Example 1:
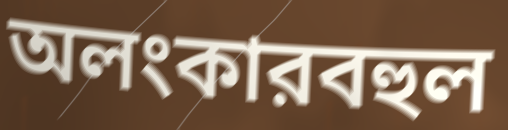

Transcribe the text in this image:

অলংকারবহুল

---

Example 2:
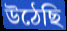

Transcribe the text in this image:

উঠেছি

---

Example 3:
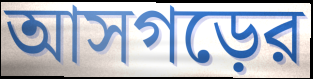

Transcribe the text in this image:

আসগড়ের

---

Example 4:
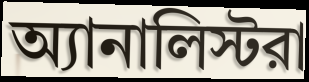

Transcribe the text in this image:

অ্যানালিস্টরা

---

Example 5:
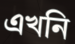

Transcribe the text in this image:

এখনি